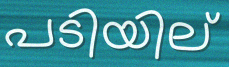
പടിയില്